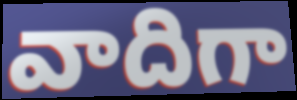
వాదిగా